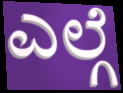
ಎಲ್ಗೆ